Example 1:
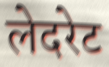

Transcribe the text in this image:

लेदरेट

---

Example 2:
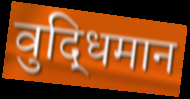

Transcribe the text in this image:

वुद्धिमान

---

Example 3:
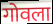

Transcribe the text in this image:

गोवला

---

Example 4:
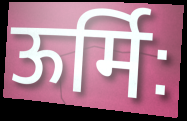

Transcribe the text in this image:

ऊर्मिः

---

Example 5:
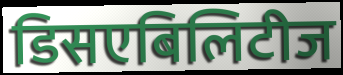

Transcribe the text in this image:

डिसएबिलिटीज